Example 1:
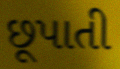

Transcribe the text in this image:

છૂપાતી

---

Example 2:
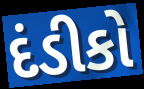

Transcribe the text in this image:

દંડીકો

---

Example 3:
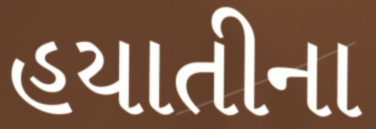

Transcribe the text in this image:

હયાતીના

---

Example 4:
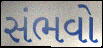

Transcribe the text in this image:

સંભવો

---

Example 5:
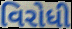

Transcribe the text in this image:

વિરોધી